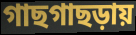
গাছগাছড়ায়